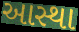
આસ્થા